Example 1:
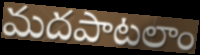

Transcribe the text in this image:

మదపాటలాం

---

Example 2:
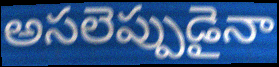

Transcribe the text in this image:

అసలెప్పుడైనా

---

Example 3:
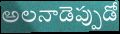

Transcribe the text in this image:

అలనాడెప్పుడో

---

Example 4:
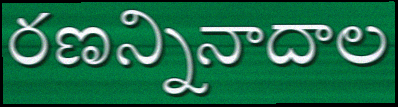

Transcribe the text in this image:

రణన్నినాదాల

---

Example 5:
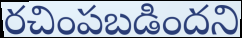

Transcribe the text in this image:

రచింపబడిందని